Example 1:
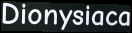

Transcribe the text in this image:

Dionysiaca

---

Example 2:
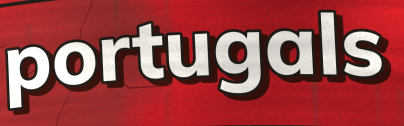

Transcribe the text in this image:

portugals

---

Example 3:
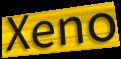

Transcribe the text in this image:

Xeno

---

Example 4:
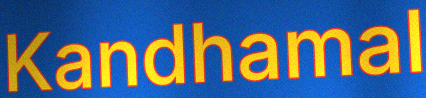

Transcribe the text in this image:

Kandhamal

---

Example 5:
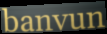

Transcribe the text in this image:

banvun